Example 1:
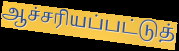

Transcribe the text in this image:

ஆச்சரியப்பட்டுத்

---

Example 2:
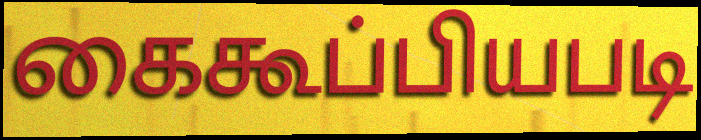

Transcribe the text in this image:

கைகூப்பியபடி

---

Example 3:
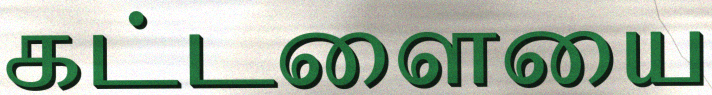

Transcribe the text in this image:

கட்டளையை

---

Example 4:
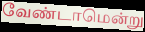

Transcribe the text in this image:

வேண்டாமென்று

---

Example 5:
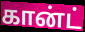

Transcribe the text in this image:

கான்ட்